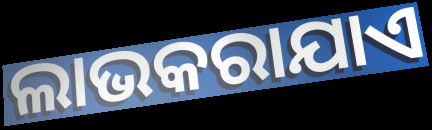
ଲାଭକରାଯାଏ